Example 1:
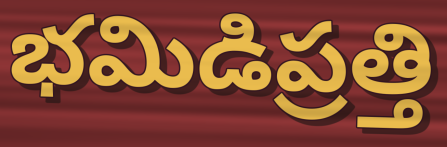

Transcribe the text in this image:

భమిడిప్రత్తి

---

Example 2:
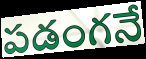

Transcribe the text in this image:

పడంగనే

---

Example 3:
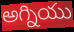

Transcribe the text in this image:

అగ్నియు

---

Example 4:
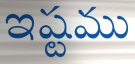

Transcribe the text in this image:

ఇష్టము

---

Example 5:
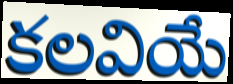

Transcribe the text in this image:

కలవియే